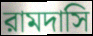
রামদাসি